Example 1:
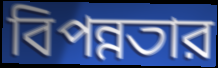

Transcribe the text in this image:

বিপন্নতার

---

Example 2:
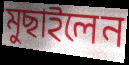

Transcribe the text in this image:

মুছাইলেন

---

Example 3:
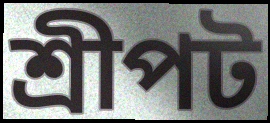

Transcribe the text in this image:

শ্রীপট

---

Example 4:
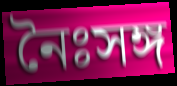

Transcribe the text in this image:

নৈঃসঙ্গ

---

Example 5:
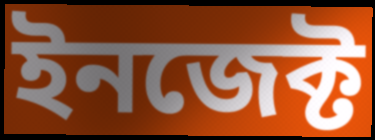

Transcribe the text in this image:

ইনজেক্ট